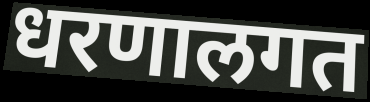
धरणालगत